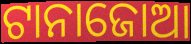
ଟାନାଜୋଆ